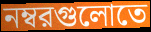
নম্বরগুলোতে